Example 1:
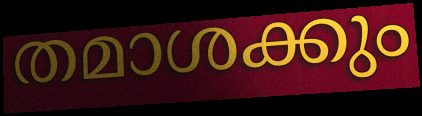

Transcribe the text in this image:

തമാശക്കും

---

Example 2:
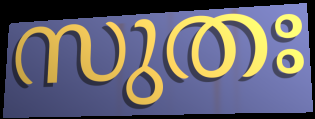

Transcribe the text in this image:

സുതഃ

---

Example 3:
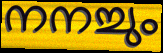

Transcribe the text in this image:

നനച്ചും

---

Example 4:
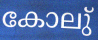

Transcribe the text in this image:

കോലു്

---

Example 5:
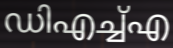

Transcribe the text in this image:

ഡിഎച്ച്എ